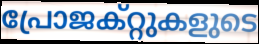
പ്രോജക്റ്റുകളുടെ